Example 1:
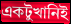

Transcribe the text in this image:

একটুখানিই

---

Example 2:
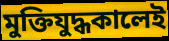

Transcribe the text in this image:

মুক্তিযুদ্ধকালেই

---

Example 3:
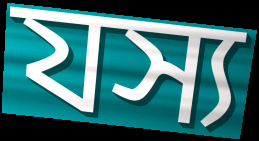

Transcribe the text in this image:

যস্য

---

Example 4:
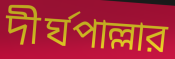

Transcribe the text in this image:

দীর্ঘপাল্লার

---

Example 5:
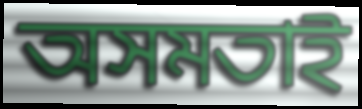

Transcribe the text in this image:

অসমতাই